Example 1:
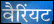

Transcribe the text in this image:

वैरिंयट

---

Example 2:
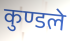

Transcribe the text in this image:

कुण्डले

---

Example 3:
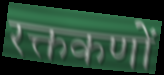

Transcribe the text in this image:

रक्तकणों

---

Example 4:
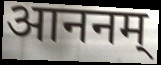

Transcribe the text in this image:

आननम्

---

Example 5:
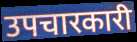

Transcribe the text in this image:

उपचारकारी